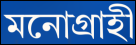
মনোগ্রাহী